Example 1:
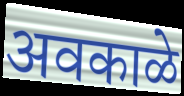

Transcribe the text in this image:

अवकाळे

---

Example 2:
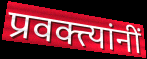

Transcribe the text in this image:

प्रवक्त्यांनीं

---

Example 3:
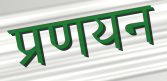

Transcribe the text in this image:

प्रणयन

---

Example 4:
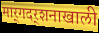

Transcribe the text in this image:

मार्गदर्शनाखाली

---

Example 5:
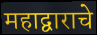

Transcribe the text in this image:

महाद्वाराचे